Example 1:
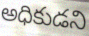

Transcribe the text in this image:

అధికుడని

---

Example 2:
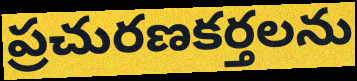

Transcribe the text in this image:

ప్రచురణకర్తలను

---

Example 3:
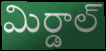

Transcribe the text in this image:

మిర్డాల్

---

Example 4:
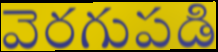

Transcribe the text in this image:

వెరగుపడి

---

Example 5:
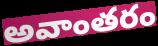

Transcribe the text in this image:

అవాంతరం